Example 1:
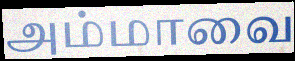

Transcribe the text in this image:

அம்மாவை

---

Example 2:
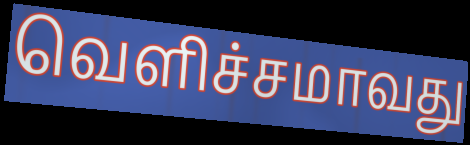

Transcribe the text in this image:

வெளிச்சமாவது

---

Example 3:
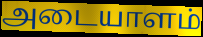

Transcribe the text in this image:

அடையாளம்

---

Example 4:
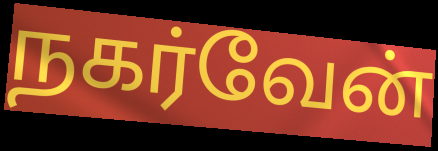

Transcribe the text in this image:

நகர்வேன்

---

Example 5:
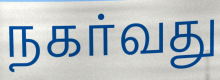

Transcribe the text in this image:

நகர்வது